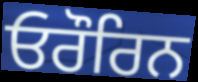
ਓਰੌਰਿਨ